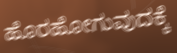
ಹೊರಹೋಗುವುದಕ್ಕೆ